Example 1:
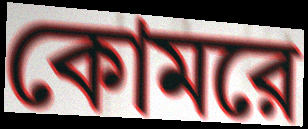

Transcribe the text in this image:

কোমরে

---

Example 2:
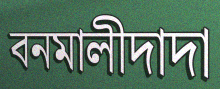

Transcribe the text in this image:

বনমালীদাদা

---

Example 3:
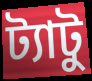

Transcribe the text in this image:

ট্যাটু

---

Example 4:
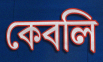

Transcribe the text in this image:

কেবলি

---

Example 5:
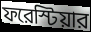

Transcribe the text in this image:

ফরেস্টিয়ার